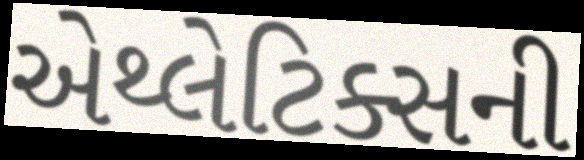
એથ્લેટિક્સની